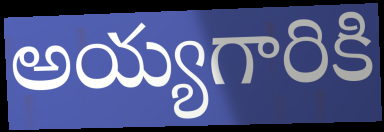
అయ్యగారికి